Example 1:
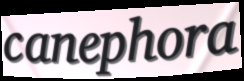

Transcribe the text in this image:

canephora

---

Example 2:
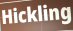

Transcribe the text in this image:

Hickling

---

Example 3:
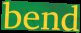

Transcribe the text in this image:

bend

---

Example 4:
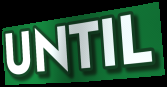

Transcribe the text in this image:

UNTIL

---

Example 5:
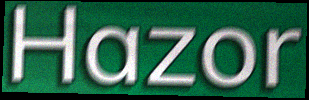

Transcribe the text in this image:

Hazor